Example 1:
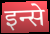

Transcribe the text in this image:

इन्से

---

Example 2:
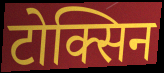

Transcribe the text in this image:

टोक्सिन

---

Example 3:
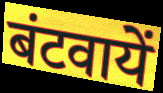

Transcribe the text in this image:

बंटवायें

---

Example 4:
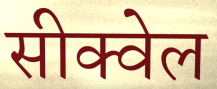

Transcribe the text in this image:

सीक्वेल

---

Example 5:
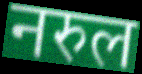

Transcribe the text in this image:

नरुल